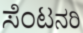
ಸೆಂಟನರಿ